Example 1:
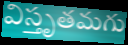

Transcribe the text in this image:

విస్తృతమగు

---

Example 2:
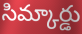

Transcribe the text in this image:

సిమ్కార్డు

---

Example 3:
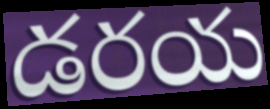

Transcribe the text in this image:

డరయ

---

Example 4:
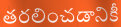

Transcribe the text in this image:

తరలించడానికీ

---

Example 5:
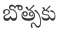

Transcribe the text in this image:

బొత్సకు